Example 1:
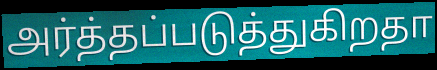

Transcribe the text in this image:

அர்த்தப்படுத்துகிறதா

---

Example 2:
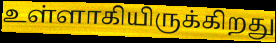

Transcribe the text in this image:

உள்ளாகியிருக்கிறது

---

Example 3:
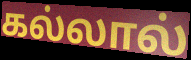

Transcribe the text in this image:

கல்லால்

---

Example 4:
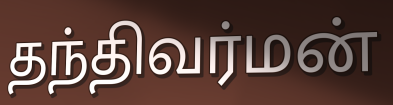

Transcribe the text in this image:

தந்திவர்மன்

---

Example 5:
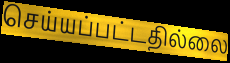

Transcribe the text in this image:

செய்யப்பட்டதில்லை